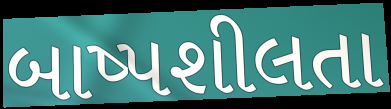
બાષ્પશીલતા